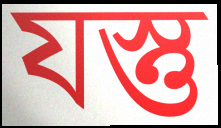
যস্তু